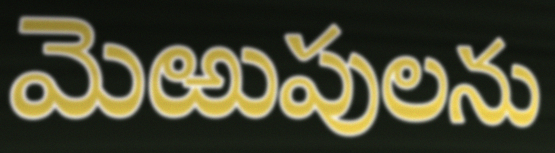
మెఱుపులను